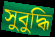
সুবুদ্ধি